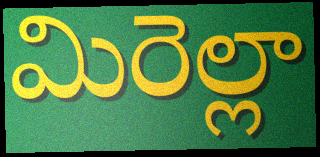
మిరెల్లా